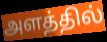
அளத்தில்